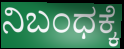
ನಿಬಂಧಕ್ಕೆ